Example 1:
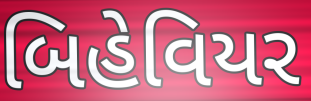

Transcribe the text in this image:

બિહેવિયર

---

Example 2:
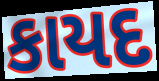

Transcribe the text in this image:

કાયદ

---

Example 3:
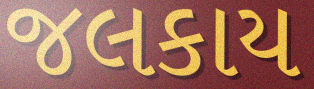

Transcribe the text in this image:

જલકાય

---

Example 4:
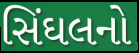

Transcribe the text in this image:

સિંઘલનો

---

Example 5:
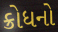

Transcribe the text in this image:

ક્રોધનો